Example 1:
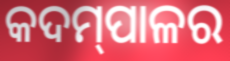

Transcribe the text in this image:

କଦମ୍‍ପାଳର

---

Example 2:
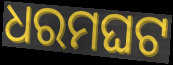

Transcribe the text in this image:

ଧରମଘଟ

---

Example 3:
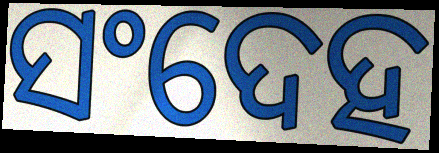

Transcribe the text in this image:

ସଂଦେହ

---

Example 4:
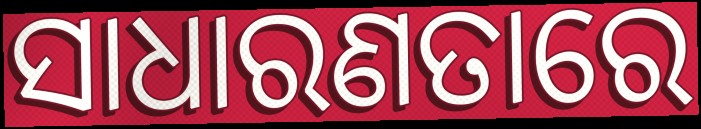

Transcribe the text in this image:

ସାଧାରଣତାରେ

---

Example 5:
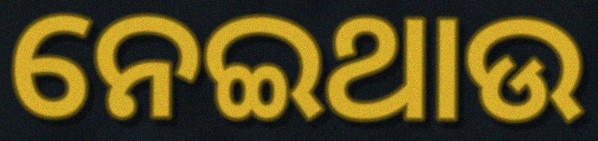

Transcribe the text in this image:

ନେଇଥାଉ